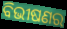
ବିଭୀଷଣର